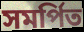
সমৰ্পিত